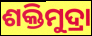
ଶକ୍ତିମୁଦ୍ରା